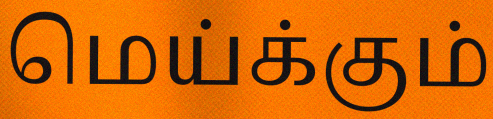
மெய்க்கும்